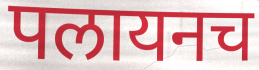
पलायनच